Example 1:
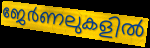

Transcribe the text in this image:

ജേർണലുകളിൽ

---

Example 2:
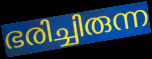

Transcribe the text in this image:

ഭരിച്ചിരുന്ന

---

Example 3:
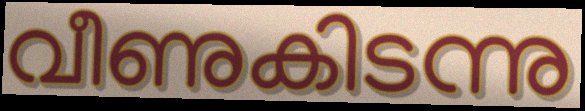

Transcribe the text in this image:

വീണുകിടന്നു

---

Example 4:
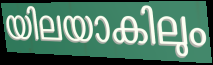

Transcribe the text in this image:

യിലയാകിലും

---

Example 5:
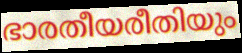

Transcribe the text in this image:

ഭാരതീയരീതിയും